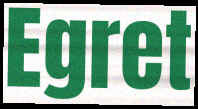
Egret